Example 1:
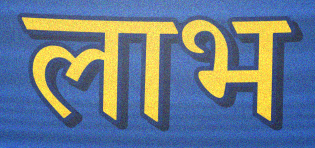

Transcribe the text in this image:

लाभ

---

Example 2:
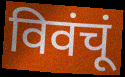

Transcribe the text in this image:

विवंचूं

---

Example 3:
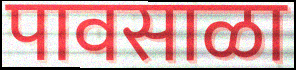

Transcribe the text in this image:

पावसाळा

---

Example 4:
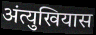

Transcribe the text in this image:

अंत्युखियास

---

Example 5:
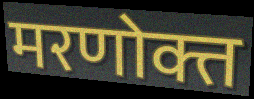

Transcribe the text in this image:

मरणोक्त